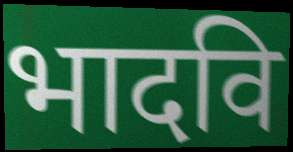
भादवि